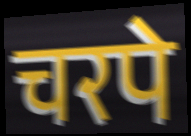
चरपे